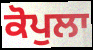
ਕੋਪੁਲਾ